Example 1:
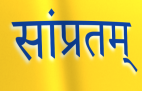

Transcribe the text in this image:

सांप्रतम्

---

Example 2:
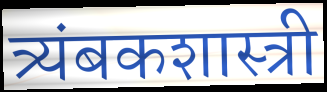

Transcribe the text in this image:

त्र्यंबकशास्त्री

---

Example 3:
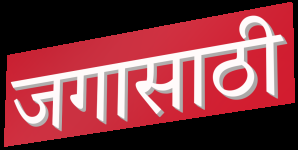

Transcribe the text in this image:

जगासाठी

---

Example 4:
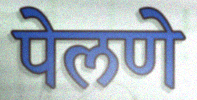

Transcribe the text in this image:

पेलणे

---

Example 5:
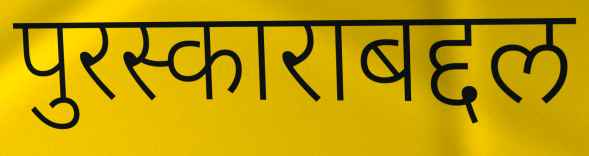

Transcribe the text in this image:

पुरस्काराबद्दल